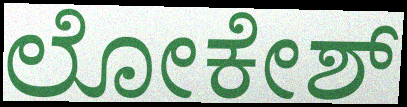
ಲೋಕೇಶ್